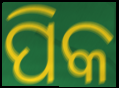
ପିକ